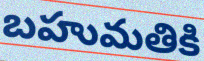
బహుమతికి